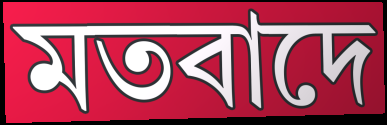
মতবাদে